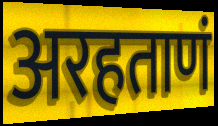
अरहताणं